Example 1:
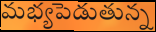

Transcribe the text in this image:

మభ్యపెడుతున్న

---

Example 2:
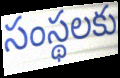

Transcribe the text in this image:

సంస్థలకు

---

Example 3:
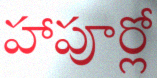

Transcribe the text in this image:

హాపూర్లో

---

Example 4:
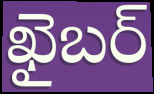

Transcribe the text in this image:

ఖైబర్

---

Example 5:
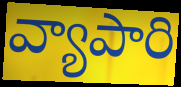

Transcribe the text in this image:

వ్యాపారి